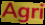
Agri